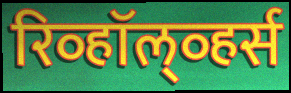
रिव्हॉल्व्हर्स